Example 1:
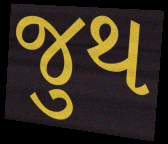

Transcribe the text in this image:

જુથ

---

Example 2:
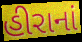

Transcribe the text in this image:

હીરાનાં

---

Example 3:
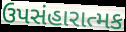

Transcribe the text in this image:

ઉપસંહારાત્મક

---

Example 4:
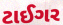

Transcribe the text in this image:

ટાઈગર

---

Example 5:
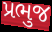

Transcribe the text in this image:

પ્રભુજ